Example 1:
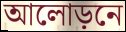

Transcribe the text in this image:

আলোড়নে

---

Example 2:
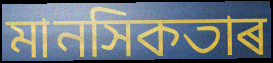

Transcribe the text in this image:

মানসিকতাৰ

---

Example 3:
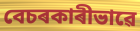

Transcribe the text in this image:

বেচৰকাৰীভাৱে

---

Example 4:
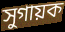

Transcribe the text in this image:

সুগায়ক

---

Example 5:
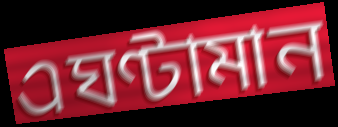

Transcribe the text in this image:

এঘণ্টামান